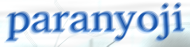
paranyoji